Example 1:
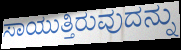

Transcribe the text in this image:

ಸಾಯುತ್ತಿರುವುದನ್ನು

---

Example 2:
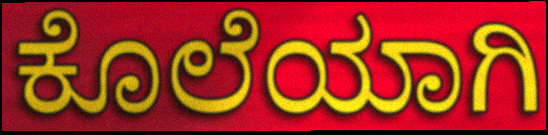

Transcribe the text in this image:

ಕೊಲೆಯಾಗಿ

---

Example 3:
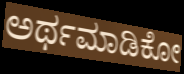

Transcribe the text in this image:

ಅರ್ಥಮಾಡಿಕೋ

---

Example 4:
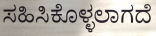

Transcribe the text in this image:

ಸಹಿಸಿಕೊಳ್ಳಲಾಗದೆ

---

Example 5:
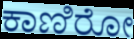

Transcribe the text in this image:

ಕಾಣಿರೋ